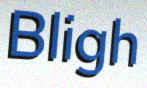
Bligh